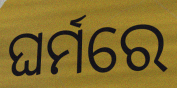
ଘର୍ମରେ